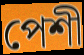
পেশী